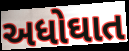
અધોઘાત